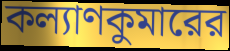
কল্যাণকুমারের